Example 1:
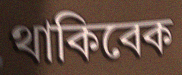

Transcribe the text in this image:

থাকিবেক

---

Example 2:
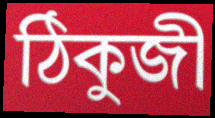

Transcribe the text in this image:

ঠিকুজী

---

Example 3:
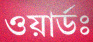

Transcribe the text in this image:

ওয়ার্ডঃ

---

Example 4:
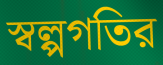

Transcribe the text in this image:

স্বল্পগতির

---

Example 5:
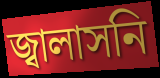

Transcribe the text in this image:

জ্বালাসনি